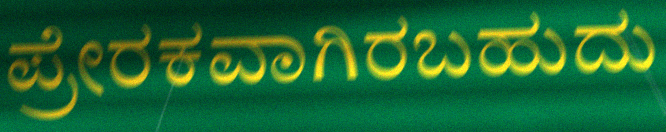
ಪ್ರೇರಕವಾಗಿರಬಹುದು